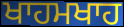
ਖਾਹਮਖਾਹ